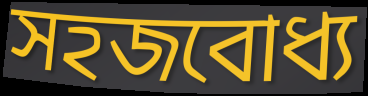
সহজবোধ্য